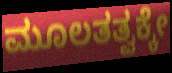
ಮೂಲತತ್ವಕ್ಕೇ